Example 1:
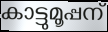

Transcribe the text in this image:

കാട്ടുമൂപ്പന്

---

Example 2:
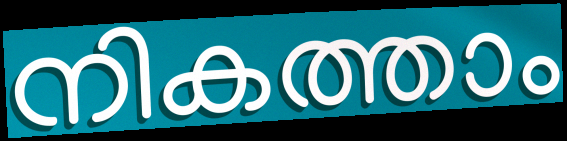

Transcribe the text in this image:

നികത്താം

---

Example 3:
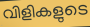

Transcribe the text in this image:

വിളികളുടെ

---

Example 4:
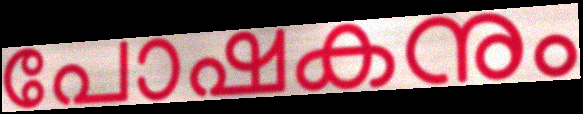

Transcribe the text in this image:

പോഷകനും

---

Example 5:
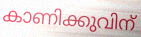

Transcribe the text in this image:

കാണിക്കുവിന്